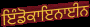
ਇੰਡੋਕਾਇਨਾਈਨ